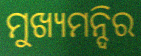
ମୁଖ୍ୟମନ୍ଦିର